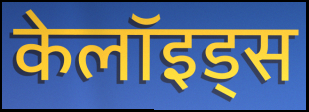
केलॉइड्स